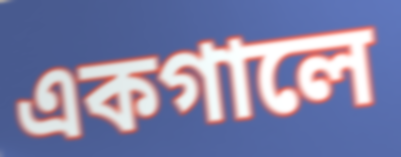
একগালে